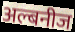
अल्‍बनीज